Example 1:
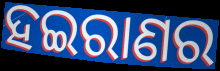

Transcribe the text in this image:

ହଇରାଣର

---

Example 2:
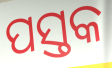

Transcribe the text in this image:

ପସ୍ତକ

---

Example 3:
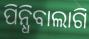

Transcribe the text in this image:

ପିନ୍ଧିବାଲାଗି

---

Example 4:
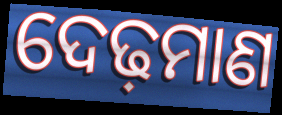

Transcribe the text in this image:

ଦେଢ଼ମାଣ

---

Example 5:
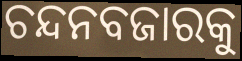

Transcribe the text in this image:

ଚନ୍ଦନବଜାରକୁ